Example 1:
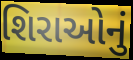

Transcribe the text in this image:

શિરાઓનું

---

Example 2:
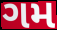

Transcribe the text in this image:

ગમ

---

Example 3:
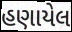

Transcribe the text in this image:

હણાયેલ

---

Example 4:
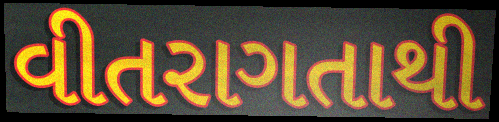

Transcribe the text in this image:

વીતરાગતાથી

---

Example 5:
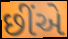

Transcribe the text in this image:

છીંએ